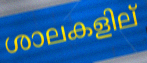
ശാലകളില്